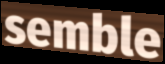
semble